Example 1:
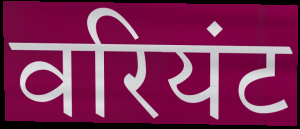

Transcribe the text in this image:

वरियंट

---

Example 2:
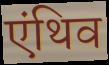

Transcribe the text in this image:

एंथिव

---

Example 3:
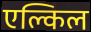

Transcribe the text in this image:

एल्किल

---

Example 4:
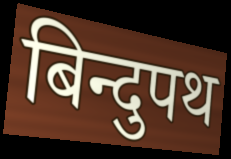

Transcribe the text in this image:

बिन्दुपथ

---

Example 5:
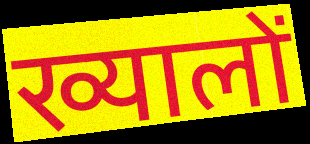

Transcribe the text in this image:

ख्यालों